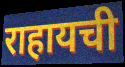
राहायची